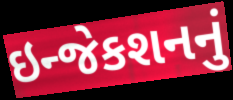
ઇન્જેકશનનું